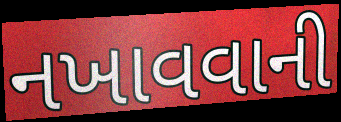
નખાવવાની